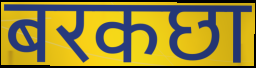
बरकछा